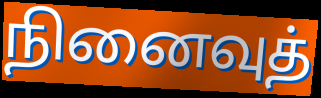
நினைவுத்